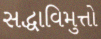
સદ્ધાવિમુત્તો